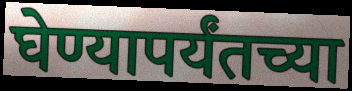
घेण्यापर्यंतच्या